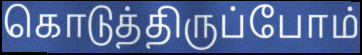
கொடுத்திருப்போம்